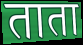
ताता